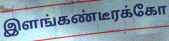
இளங்கண்டீரக்கோ